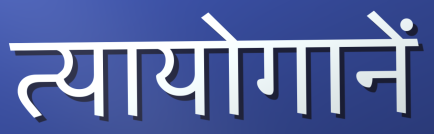
त्यायोगानें